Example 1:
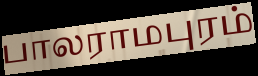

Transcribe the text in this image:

பாலராமபுரம்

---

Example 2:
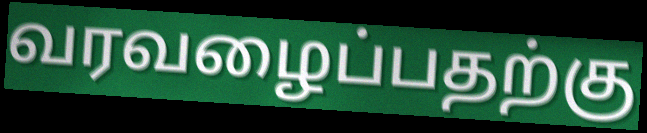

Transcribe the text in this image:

வரவழைப்பதற்கு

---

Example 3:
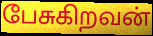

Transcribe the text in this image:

பேசுகிறவன்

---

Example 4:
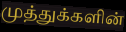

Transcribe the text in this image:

முத்துக்களின்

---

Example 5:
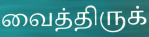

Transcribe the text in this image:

வைத்திருக்